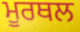
ਮੂਰਥਲ